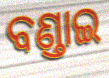
ବଣ୍ଡାଇ